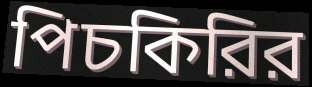
পিচকিরির